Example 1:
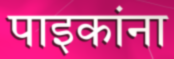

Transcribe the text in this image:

पाइकांना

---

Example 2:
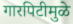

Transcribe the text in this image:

गारपिटीमुळे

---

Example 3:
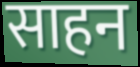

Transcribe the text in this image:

साहन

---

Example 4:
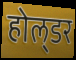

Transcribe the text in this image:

होल्डर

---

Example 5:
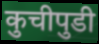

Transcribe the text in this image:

कुचीपुडी